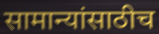
सामान्यांसाठीच